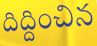
దిద్దించిన